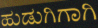
ಹುಡುಗಿಗಾಗಿ